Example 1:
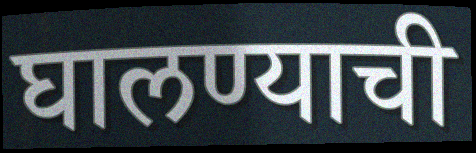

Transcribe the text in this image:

घालण्याची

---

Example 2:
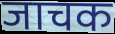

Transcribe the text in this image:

जाचक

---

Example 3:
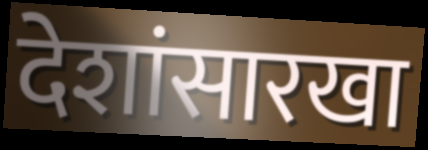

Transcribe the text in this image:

देशांसारखा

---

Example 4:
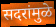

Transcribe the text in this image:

सदरांमुळे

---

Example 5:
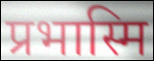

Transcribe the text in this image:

प्रभास्मि